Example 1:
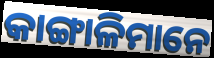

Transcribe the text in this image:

କାଙ୍ଗାଳିମାନେ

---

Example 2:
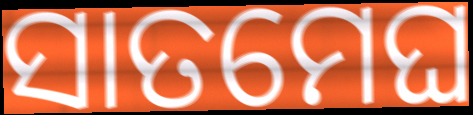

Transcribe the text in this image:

ସାତମେଘ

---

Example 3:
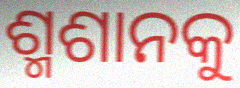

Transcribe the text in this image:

ଶ୍ମଶାନକୁ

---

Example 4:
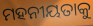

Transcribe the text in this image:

ମହନୀୟତାକୁ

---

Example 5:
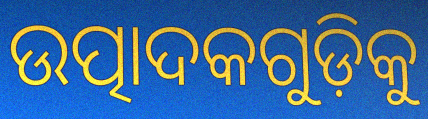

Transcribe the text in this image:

ଉତ୍ପାଦକଗୁଡ଼ିକୁ